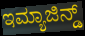
ಇಮ್ಯಾಜಿನ್ಡ್